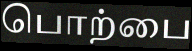
பொற்பை